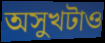
অসুখটাও